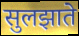
सुलझाते